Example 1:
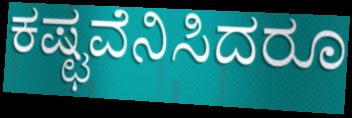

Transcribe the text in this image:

ಕಷ್ಟವೆನಿಸಿದರೂ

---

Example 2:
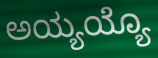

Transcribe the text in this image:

ಅಯ್ಯಯ್ಯೊ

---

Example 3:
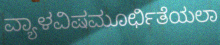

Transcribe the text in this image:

ವ್ಯಾಳವಿಷಮೂರ್ಛಿತೆಯಲಾ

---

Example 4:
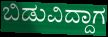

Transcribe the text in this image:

ಬಿಡುವಿದ್ದಾಗ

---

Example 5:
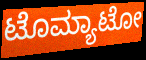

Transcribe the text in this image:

ಟೊಮ್ಯಾಟೋ